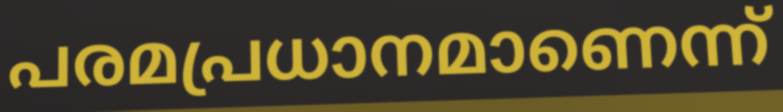
പരമപ്രധാനമാണെന്ന്